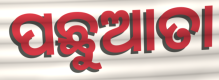
ପଛୁଆତା